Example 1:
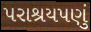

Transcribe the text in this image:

પરાશ્રયપણું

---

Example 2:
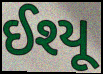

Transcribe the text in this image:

ઈશ્યૂ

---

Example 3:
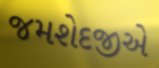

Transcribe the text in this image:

જમશેદજીએ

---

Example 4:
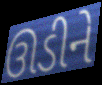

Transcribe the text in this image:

ઊડીને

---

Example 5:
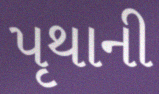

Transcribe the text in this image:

પૃથાની